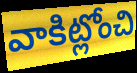
వాకిట్లోంచి